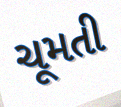
ચૂમતી